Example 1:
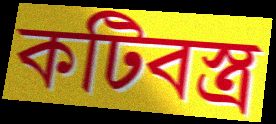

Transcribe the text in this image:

কটিবস্ত্র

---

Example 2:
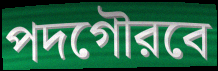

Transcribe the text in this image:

পদগৌরবে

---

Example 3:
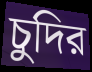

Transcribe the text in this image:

চুদির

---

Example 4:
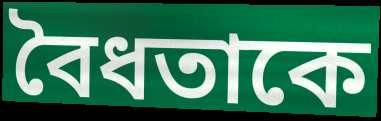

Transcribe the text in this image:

বৈধতাকে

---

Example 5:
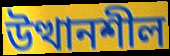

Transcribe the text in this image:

উত্থানশীল